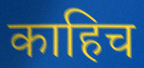
काहिच